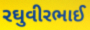
રઘુવીરભાઈ